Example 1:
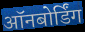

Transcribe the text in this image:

ऑनबोर्डिंग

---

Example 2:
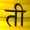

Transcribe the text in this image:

ती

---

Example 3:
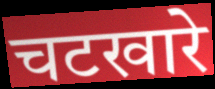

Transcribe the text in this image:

चटखारे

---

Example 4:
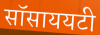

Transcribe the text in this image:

सॉसाययटी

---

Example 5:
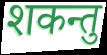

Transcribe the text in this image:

शकन्तु